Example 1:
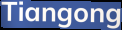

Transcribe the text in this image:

Tiangong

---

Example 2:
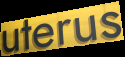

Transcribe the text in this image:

uterus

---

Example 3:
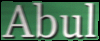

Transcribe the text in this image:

Abul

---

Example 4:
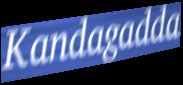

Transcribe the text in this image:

Kandagadda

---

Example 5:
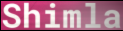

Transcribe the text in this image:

Shimla